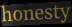
honesty